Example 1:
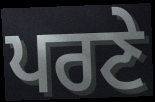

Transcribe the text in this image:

ਪਰਣੇ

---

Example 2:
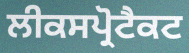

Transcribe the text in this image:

ਲੀਕਸਪ੍ਰੋਟੈਕਟ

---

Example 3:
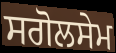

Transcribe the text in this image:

ਸਗੋਲਸੇਮ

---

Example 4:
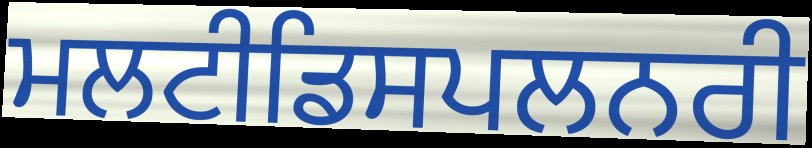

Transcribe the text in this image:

ਮਲਟੀਡਿਸਪਲਨਰੀ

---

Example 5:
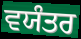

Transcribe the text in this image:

ਵਯੰਤਰ